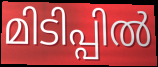
മിടിപ്പിൽ